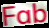
Fab